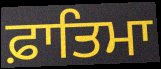
ਫ਼ਾਤਿਮਾ